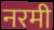
नरमी